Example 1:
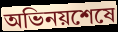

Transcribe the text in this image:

অভিনয়শেষে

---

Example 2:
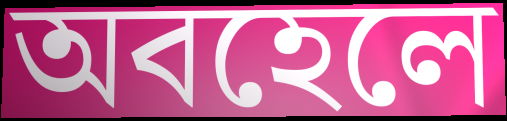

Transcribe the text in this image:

অবহেলে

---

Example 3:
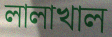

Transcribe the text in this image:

লালাখাল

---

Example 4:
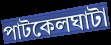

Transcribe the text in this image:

পাটকেলঘাটা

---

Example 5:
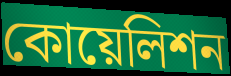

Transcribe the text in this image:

কোয়েলিশন